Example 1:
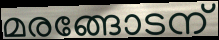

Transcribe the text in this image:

മരങ്ങോടന്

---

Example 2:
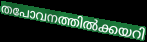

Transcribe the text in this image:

തപോവനത്തിൽക്കയറി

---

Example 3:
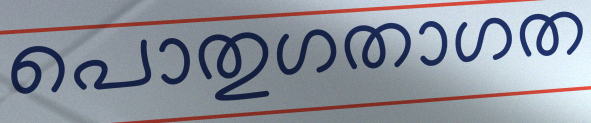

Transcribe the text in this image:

പൊതുഗതാഗത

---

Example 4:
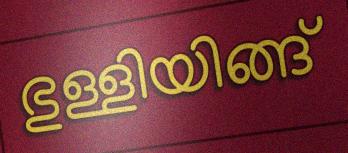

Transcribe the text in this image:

ഭുള്ളിയിങ്ങ്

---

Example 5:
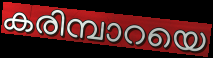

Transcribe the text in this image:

കരിമ്പാറയെ